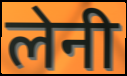
लेनी